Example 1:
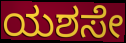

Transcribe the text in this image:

ಯಶಸೇ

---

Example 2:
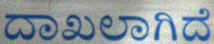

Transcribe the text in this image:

ದಾಖಲಾಗಿದೆ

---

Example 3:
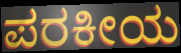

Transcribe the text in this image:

ಪರಕೀಯ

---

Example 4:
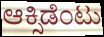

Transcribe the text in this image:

ಆಕ್ಸಿಡೆಂಟು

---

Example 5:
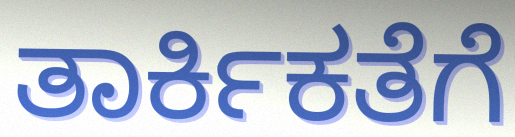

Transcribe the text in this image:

ತಾರ್ಕಿಕತೆಗೆ